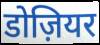
डोज़ियर